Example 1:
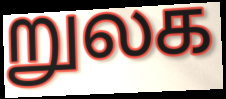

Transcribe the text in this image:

றுலக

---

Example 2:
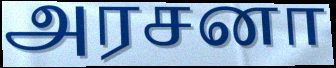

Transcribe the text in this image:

அரசனா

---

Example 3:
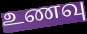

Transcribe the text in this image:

உணவு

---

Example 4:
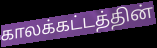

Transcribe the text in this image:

காலக்கட்டத்தின்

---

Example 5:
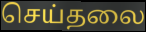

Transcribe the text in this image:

செய்தலை